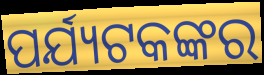
ପର୍ଯ୍ୟଟକଙ୍କର